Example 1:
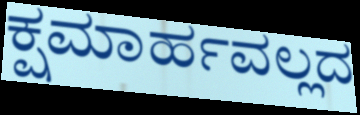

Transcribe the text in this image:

ಕ್ಷಮಾರ್ಹವಲ್ಲದ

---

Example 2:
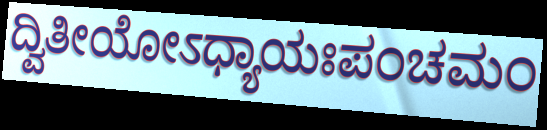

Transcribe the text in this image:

ದ್ವಿತೀಯೋಽಧ್ಯಾಯಃಪಂಚಮಂ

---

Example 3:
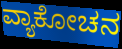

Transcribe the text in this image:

ವ್ಯಾಕೋಚನ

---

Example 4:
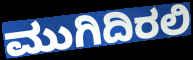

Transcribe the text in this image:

ಮುಗಿದಿರಲಿ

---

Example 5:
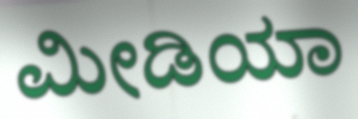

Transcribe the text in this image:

ಮೀಡಿಯಾ